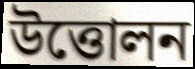
উত্তোলন